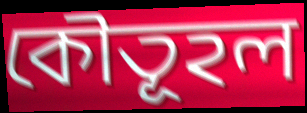
কৌতূহল